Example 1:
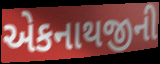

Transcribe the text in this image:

એકનાથજીની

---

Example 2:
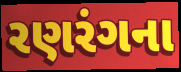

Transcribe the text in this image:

રણરંગના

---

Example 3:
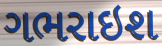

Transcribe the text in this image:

ગભરાઇશ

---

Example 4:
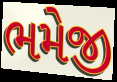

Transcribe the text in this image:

ભમેજી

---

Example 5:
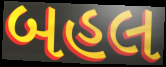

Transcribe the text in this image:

બહલ